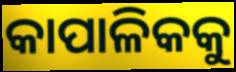
କାପାଳିକକୁ